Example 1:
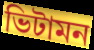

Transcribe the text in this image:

ভিটামন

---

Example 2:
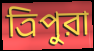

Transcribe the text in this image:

ত্রিপুরা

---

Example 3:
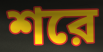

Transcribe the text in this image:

শরে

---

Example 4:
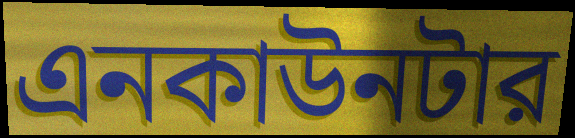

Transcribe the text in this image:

এনকাউনটার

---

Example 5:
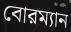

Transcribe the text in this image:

বোরম্যান